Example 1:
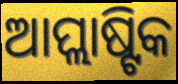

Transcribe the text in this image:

ଆପ୍ଲାଷ୍ଟିକ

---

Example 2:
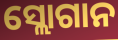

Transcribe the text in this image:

ସ୍ଲୋଗାନ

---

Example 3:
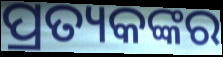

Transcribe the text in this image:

ପ୍ରତ୍ୟକଙ୍କର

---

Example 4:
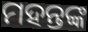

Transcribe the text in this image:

ମହନ୍ତଙ୍କ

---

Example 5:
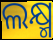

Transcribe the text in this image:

ଲକ୍ଷ୍ମ